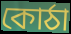
কোঠা